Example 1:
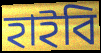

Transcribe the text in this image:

হাইবি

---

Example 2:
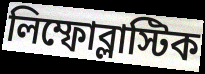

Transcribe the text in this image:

লিম্ফোব্লাস্টিক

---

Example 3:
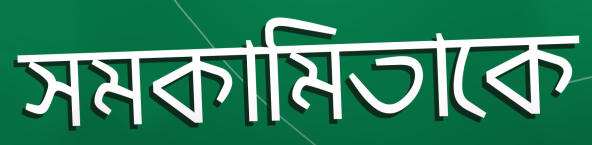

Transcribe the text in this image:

সমকামিতাকে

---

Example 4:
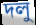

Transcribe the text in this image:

দলু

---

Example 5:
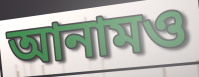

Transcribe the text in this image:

আনামও